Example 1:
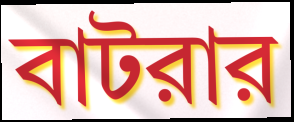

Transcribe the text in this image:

বাটরার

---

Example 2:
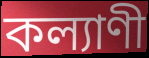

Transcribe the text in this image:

কল্যাণী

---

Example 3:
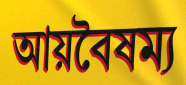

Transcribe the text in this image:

আয়বৈষম্য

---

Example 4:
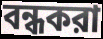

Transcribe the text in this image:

বন্ধকরা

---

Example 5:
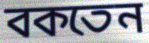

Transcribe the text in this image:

বকতেন